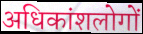
अधिकांशलोगों